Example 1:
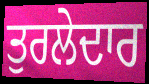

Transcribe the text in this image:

ਤੁਰਲੇਦਾਰ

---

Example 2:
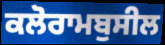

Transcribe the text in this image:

ਕਲੋਰਾਮਬੁਸੀਲ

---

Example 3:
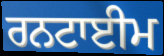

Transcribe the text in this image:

ਰਨਟਾਈਮ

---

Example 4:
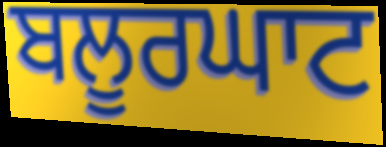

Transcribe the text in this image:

ਬਲੂਰਘਾਟ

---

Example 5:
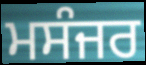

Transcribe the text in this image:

ਮਸੰਜਰ